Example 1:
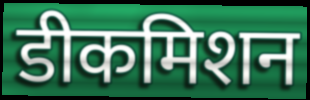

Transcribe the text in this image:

डीकमिशन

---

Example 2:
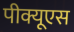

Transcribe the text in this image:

पीक्यूएस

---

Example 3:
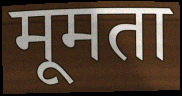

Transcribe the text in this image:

मूमता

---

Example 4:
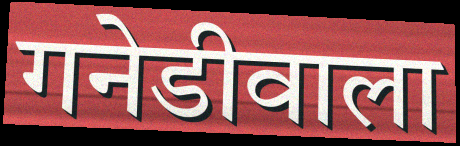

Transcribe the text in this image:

गनेडीवाला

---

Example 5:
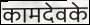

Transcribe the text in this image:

कामदेवके